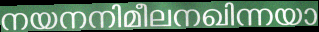
നയനനിമീലനഖിന്നയാ